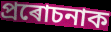
প্ৰৰোচনাক